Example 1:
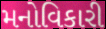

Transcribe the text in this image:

મનોવિકારી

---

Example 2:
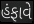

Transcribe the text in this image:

હંફાવે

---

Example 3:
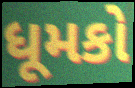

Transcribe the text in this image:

ધૂમકો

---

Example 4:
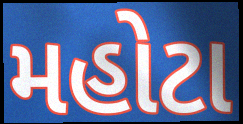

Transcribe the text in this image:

મહોટા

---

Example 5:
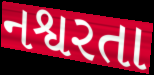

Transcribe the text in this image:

નશ્વરતા